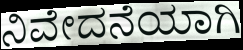
ನಿವೇದನೆಯಾಗಿ